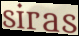
siras